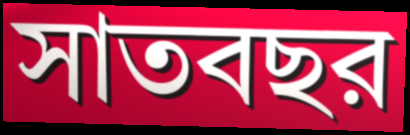
সাতবছর